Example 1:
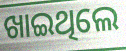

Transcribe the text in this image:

ଖାଇଥିଲେ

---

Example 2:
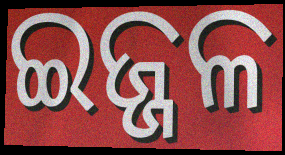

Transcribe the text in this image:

ଇଜ୍ଜଳ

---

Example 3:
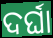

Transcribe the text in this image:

ଦର୍ଘା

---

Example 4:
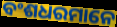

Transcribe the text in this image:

ବଂଶଧରମାନେ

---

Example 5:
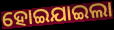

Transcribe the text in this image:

ହୋଇଯାଇଲା